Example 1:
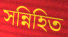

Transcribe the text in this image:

সন্নিহিত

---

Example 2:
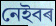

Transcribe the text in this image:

নেইবৰ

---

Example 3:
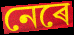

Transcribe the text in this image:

নেৰে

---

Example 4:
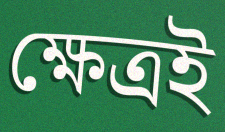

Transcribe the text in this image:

ক্ষেত্ৰই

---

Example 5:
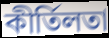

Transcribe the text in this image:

কীৰ্তিলতা